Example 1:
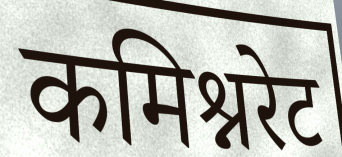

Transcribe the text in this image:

कमिश्नरेट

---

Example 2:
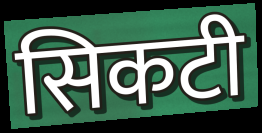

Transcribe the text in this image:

सिकटी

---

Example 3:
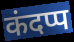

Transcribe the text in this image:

कंदप्प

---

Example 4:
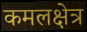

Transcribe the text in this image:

कमलक्षेत्र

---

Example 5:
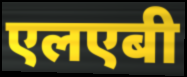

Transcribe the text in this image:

एलएबी